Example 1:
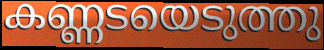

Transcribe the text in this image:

കണ്ണടയെടുത്തു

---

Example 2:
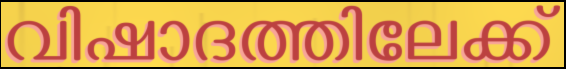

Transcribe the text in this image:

വിഷാദത്തിലേക്ക്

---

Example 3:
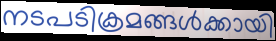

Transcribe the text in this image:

നടപടിക്രമങ്ങൾക്കായി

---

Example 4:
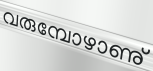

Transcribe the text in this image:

വരുമ്പോഴാണു്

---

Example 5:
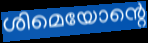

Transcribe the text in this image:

ശിമെയോന്റെ